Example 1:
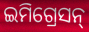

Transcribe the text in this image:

ଇମିଗ୍ରେସନ୍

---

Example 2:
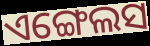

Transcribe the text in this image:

ଏଙ୍ଗେଲସ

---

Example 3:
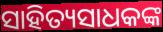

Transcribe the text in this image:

ସାହିତ୍ୟସାଧକଙ୍କ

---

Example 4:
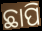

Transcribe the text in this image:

ଛାପି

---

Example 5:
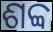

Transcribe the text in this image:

ଶବ୍ବ